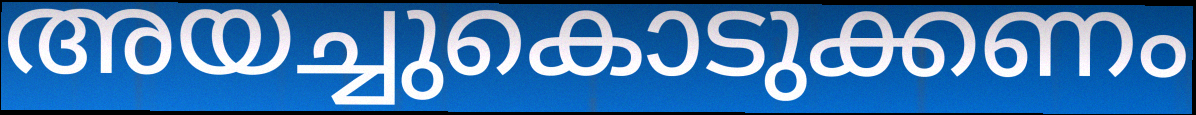
അയച്ചുകൊടുക്കണം